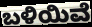
ಬಳಿಯಿವೆ